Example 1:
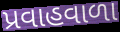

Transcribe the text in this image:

પ્રવાહવાળા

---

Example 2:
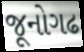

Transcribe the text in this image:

જૂનોગઢ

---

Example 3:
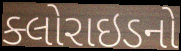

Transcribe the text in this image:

ક્લોરાઇડનો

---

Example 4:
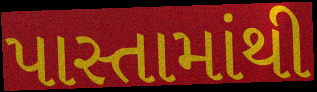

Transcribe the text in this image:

પાસ્તામાંથી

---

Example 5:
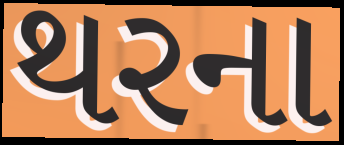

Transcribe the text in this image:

થરના